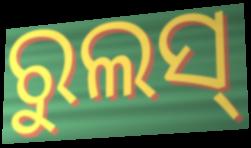
ରୁଲସ୍